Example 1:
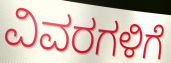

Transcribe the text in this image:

ವಿವರಗಳಿಗೆ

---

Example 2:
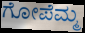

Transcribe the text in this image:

ಗೋಪೆಮ್ಮ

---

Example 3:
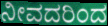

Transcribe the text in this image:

ನೀವದರಿಂದ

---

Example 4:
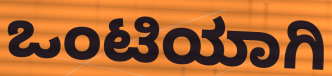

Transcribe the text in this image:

ಒಂಟಿಯಾಗಿ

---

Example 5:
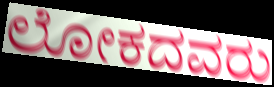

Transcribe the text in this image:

ಲೋಕದವರು